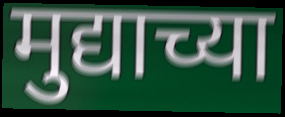
मुद्याच्या